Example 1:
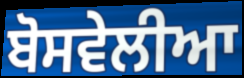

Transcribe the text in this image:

ਬੋਸਵੇਲੀਆ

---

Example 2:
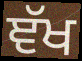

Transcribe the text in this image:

ਞੱਖ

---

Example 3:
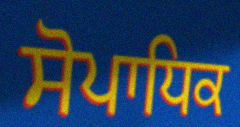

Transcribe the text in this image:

ਸੋਪਾਧਿਕ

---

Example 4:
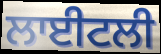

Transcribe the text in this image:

ਲਾਈਟਲੀ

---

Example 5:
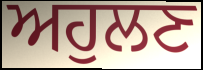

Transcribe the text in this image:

ਅਹੁਲਣ